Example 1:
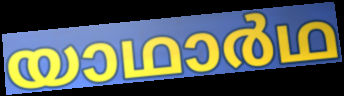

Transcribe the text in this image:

യാഥാർഥ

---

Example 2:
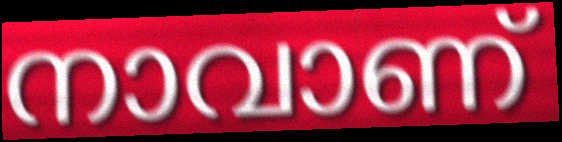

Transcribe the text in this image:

നാവാണ്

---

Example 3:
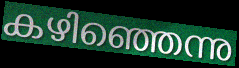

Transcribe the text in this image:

കഴിഞ്ഞെന്നു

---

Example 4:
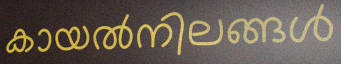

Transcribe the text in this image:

കായൽനിലങ്ങൾ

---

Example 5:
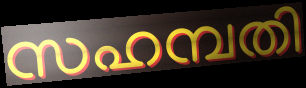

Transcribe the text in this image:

സഹമ്പതി